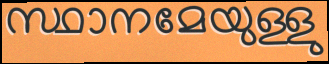
സ്ഥാനമേയുള്ളു